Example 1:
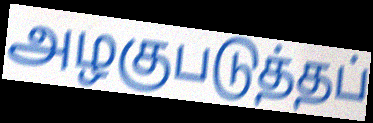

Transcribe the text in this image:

அழகுபடுத்தப்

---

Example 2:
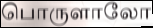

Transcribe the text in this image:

பொருளாலோ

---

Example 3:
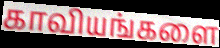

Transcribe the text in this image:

காவியங்களை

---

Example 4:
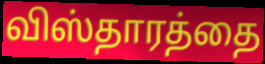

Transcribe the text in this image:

விஸ்தாரத்தை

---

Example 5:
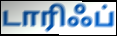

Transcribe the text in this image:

டாரிஃப்